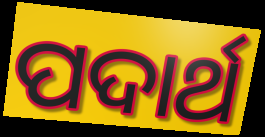
ପଦାର୍ଥ